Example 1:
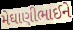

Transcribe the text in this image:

મેઘાણીભાઈને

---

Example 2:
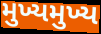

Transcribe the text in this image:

મુખ્યમુખ્ય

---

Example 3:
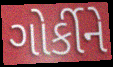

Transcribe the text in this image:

ગોર્કીને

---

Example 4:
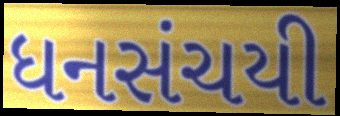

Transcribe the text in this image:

ધનસંચયી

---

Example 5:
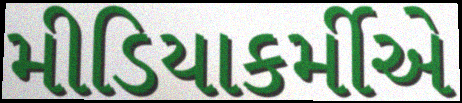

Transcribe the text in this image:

મીડિયાકર્મીએ